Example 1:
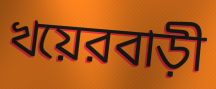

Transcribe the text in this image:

খয়েরবাড়ী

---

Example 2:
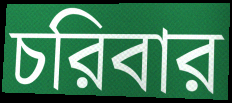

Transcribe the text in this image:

চরিবার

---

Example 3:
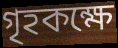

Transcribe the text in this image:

গৃহকক্ষে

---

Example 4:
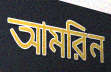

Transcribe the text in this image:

আমরিন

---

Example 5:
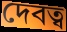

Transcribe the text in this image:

দেবত্ব